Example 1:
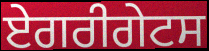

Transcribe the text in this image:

ਏਗਰੀਗੇਟਸ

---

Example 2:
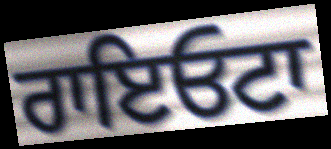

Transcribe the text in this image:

ਰਾਇਓਟਾ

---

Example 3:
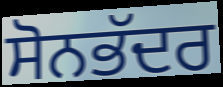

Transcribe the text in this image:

ਸੋਨਭੱਦਰ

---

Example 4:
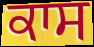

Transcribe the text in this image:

ਕਾਸ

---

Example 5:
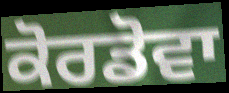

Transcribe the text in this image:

ਕੋਰਡੋਵਾ